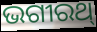
ଭଗୀରଥ୍